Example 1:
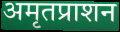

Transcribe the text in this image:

अमृतप्राशन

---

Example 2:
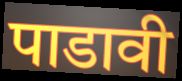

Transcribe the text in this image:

पाडावी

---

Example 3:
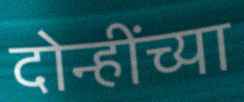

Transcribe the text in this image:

दोन्हींच्या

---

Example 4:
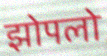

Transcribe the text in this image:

झोपलो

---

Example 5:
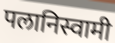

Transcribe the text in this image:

पलानिस्वामी